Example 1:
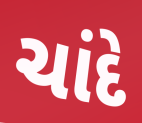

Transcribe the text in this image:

ચાંદે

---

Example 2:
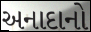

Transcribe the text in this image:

અનાદાનો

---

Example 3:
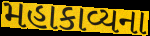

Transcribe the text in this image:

મહાકાવ્યના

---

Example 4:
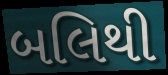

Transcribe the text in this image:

બલિથી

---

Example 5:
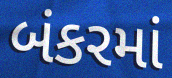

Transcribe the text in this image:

બંકરમાં